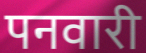
पनवारी